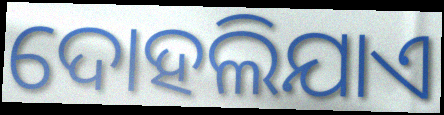
ଦୋହଲିଯାଏ